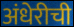
अंधेरीची